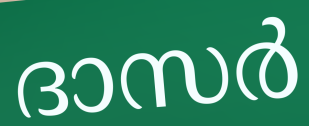
ദാസർ